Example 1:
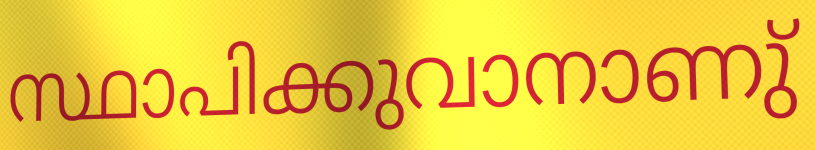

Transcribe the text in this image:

സ്ഥാപിക്കുവാനാണു്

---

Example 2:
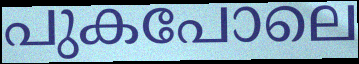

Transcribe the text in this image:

പുകപോലെ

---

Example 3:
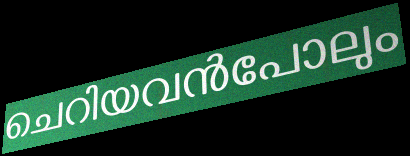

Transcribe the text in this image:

ചെറിയവൻപോലും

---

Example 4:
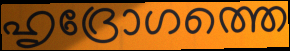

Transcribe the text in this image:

ഹൃദ്രോഗത്തെ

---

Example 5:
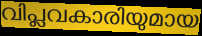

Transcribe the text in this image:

വിപ്ലവകാരിയുമായ